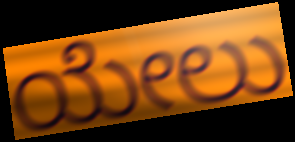
ಯೇಲು